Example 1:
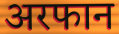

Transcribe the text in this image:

अरफान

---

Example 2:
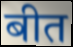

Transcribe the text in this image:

बीत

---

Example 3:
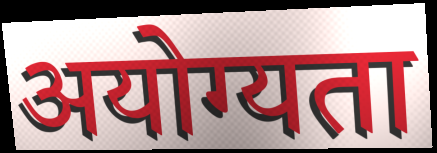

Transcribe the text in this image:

अयोग्यता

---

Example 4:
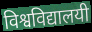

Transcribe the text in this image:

विश्वविद्यालयी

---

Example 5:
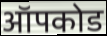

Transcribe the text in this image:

ऑपकोड